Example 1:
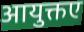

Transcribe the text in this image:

आयुक्तए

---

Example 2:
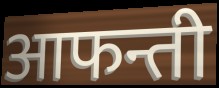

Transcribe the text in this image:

आफन्ती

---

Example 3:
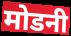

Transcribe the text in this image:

मोडनी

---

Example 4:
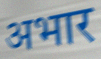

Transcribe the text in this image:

अभार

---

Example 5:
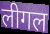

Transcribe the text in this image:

लीगल